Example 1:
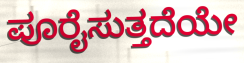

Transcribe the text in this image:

ಪೂರೈಸುತ್ತದೆಯೇ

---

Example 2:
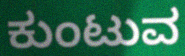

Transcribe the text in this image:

ಕುಂಟುವ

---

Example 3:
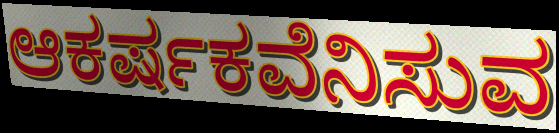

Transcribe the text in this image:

ಆಕರ್ಷಕವೆನಿಸುವ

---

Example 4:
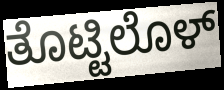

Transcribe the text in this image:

ತೊಟ್ಟಿಲೊಳ್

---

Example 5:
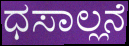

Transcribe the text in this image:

ಧಸಾಲ್ಲನೆ